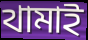
থামাই